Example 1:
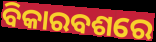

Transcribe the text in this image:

ବିକାରବଶରେ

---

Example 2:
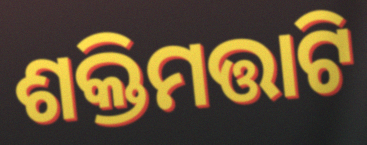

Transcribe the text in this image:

ଶକ୍ତିମତ୍ତାଟି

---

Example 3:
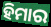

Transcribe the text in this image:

ହିମାର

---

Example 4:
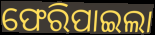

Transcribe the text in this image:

ଫେରିପାଇଲା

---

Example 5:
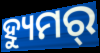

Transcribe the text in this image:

ହ୍ୟୁମର୍